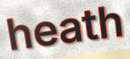
heath